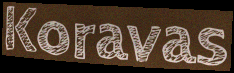
Koravas